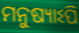
ମନୁଷ୍ୟାଽପି